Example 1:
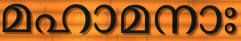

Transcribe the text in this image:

മഹാമനാഃ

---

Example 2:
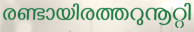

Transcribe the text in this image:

രണ്ടായിരത്തറുനൂറ്റി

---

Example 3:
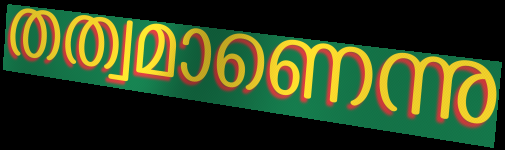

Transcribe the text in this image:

തത്വമാണെന്നു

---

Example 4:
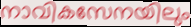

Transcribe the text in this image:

നാവികസേനയിലും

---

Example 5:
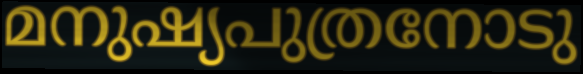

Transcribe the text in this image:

മനുഷ്യപുത്രനോടു